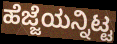
ಹೆಜ್ಜೆಯನ್ನಿಟ್ಟ